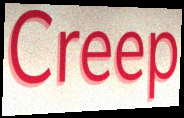
Creep